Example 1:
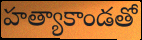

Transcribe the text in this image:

హత్యాకాండతో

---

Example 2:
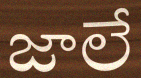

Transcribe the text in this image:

జాలే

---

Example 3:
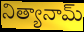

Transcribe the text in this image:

నిత్యానామ్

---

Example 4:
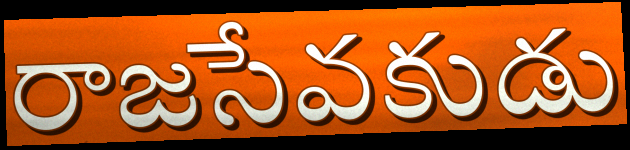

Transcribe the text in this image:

రాజసేవకుడు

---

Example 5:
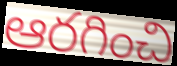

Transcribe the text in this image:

ఆరగించి